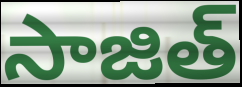
సాజిత్